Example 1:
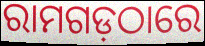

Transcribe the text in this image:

ରାମଗଡ଼ଠାରେ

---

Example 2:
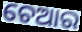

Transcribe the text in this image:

ଚେଆର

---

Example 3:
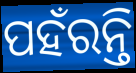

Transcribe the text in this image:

ପହଁରନ୍ତି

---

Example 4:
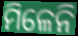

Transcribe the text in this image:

ମିଳେନି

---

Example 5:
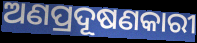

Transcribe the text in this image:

ଅଣପ୍ରଦୂଷଣକାରୀ